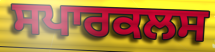
ਸਪਾਰਕਲਸ